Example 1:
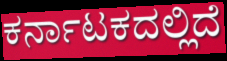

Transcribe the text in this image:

ಕರ್ನಾಟಕದಲ್ಲಿದೆ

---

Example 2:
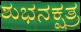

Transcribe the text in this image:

ಶುಭನಕ್ಷತ್ರ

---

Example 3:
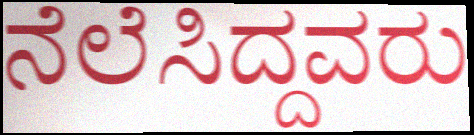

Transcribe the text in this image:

ನೆಲೆಸಿದ್ದವರು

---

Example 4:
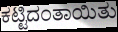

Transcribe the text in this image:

ಕಟ್ಟಿದಂತಾಯಿತು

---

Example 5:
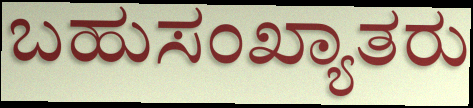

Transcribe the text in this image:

ಬಹುಸಂಖ್ಯಾತರು